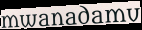
mwanadamu